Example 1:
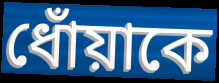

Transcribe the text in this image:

ধোঁয়াকে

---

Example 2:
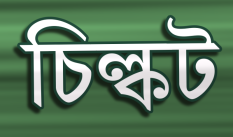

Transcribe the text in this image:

চিল্কট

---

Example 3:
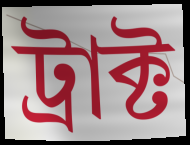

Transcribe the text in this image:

ট্রাক্ট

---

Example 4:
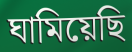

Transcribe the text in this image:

ঘামিয়েছি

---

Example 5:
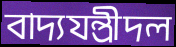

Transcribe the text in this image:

বাদ্যযন্ত্রীদল